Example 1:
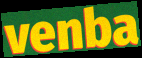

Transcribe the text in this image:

venba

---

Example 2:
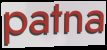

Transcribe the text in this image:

patna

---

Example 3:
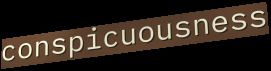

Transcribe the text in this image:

conspicuousness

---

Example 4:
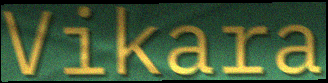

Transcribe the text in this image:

Vikara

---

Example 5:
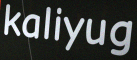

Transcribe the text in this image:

kaliyug